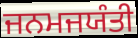
ਜਨਮਜਯੰਤੀ